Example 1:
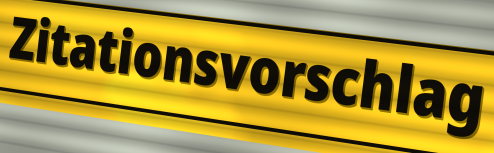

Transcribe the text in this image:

Zitationsvorschlag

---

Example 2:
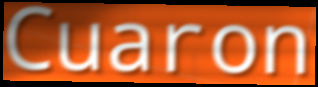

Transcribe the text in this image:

Cuaron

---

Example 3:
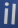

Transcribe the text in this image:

il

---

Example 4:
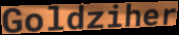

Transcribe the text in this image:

Goldziher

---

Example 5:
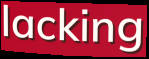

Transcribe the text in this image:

lacking